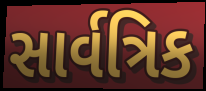
સાર્વત્રિક